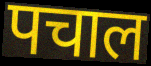
पचाल